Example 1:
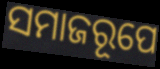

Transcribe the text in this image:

ସମାଜରୂପେ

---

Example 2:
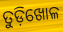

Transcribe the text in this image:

ତୁଡ଼ିଖୋଳ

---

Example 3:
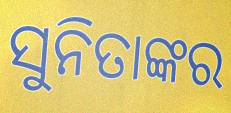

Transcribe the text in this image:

ସୁନିତାଙ୍କର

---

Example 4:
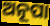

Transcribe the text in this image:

ଅନୂପା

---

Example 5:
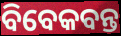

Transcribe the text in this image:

ବିବେକବନ୍ତ